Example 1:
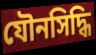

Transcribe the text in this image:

যৌনসিদ্ধি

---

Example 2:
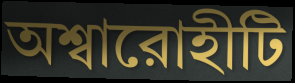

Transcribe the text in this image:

অশ্বারোহীটি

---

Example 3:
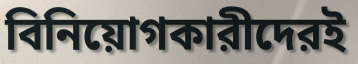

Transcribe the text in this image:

বিনিয়োগকারীদেরই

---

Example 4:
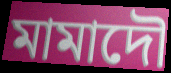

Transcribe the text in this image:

মামাদৌ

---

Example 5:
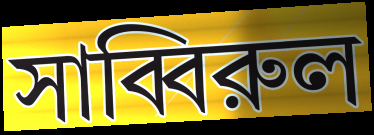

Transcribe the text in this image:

সাব্বিরুল